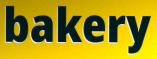
bakery